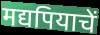
मद्यपियाचें